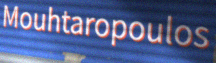
Mouhtaropoulos